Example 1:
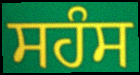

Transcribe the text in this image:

ਸਹੰਸ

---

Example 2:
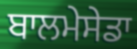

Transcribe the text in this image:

ਬਾਲਮੇਸੇਡਾ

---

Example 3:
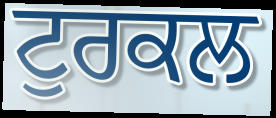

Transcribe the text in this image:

ਟੁਰਕਲ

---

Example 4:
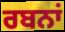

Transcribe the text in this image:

ਰਬਨਾਂ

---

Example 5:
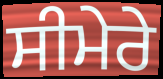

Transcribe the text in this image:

ਸੀਮੇਰੇ